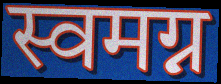
स्वमग्न